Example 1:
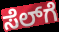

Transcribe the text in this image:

ಸೆಲ್‍ಗೆ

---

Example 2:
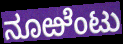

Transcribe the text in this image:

ನೂಱೆಂಟು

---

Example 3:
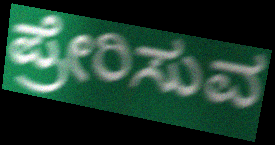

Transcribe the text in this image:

ಪ್ರೇರಿಸುವ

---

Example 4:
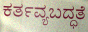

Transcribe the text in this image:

ಕರ್ತವ್ಯಬದ್ಧತೆ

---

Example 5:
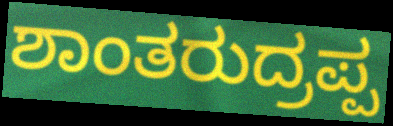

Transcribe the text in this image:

ಶಾಂತರುದ್ರಪ್ಪ